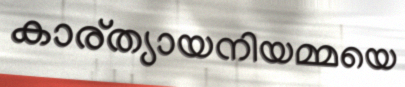
കാര്ത്യായനിയമ്മയെ